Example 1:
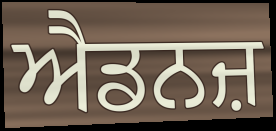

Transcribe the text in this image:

ਐਡਨਜ਼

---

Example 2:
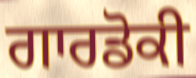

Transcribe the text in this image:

ਗਾਰਡੋਕੀ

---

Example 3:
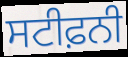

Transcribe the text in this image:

ਸਟੀਫ਼ਨੀ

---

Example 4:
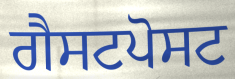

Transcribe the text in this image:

ਗੈਸਟਪੋਸਟ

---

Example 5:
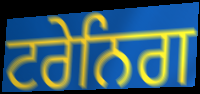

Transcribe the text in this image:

ਟਰੇਨਿਗ